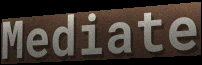
Mediate